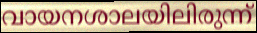
വായനശാലയിലിരുന്ന്